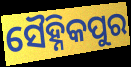
ସୈହ୍ନିକପୁର